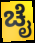
ಚೈ